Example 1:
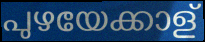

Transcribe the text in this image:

പുഴയേക്കാള്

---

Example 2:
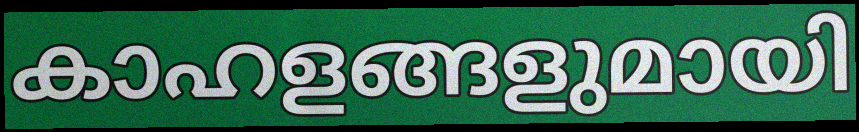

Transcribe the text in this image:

കാഹളങ്ങളുമായി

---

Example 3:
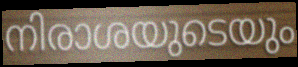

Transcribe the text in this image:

നിരാശയുടെയും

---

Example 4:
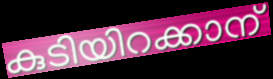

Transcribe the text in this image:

കുടിയിറക്കാന്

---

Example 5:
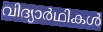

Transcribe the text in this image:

വിദ്യാർഥികൾ